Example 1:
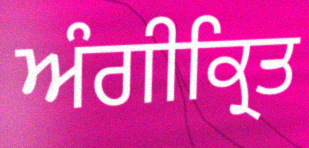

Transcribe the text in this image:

ਅੰਗੀਕ੍ਰਿਤ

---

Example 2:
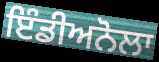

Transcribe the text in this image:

ਇੰਡੀਅਨੋਲਾ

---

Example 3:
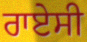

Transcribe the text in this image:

ਰਾਏਸੀ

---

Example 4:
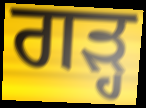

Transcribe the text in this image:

ਗੜ੍ਹ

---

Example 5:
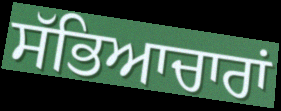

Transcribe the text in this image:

ਸੱਭਿਆਚਾਰਾਂ